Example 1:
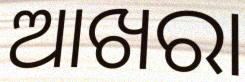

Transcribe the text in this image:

ଆଖରା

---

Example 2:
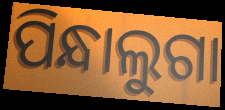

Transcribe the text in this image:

ପିନ୍ଧାଲୁଗା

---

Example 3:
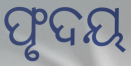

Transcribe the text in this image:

ଫୃଦୟ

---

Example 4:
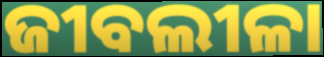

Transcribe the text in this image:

ଜୀବଲୀଳା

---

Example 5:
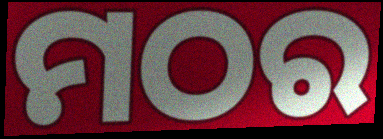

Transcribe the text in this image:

ମଠର